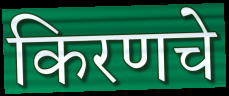
किरणचे